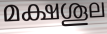
മക്ഷശൂല